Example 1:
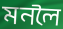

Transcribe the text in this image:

মনলৈ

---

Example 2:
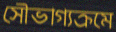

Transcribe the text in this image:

সৌভাগ্যক্ৰমে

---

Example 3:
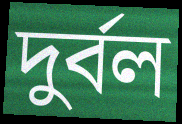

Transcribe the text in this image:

দুৰ্বল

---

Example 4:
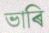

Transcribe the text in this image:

ভাৰি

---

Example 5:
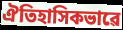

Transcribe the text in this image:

ঐতিহাসিকভাৱে